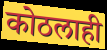
कोठलाही